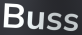
Buss